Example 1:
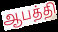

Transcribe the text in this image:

ஆபத்தி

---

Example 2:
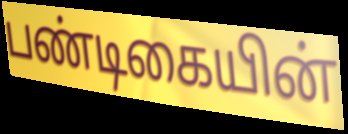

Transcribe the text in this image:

பண்டிகையின்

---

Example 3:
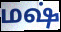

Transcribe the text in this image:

மஷ்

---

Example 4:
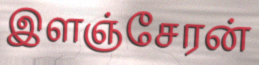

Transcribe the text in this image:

இளஞ்சேரன்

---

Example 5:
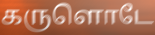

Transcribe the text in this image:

கருளொடே